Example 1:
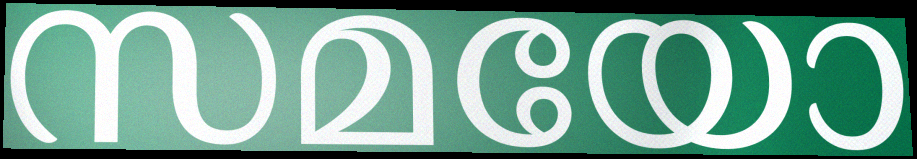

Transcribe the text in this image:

സമയോ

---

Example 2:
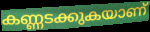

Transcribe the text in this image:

കണ്ണടക്കുകയാണ്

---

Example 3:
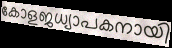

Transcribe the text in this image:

കോളജധ്യാപകനായി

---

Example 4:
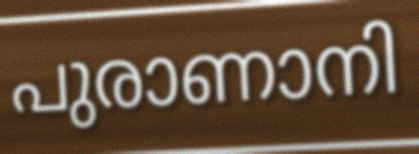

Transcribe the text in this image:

പുരാണാനി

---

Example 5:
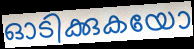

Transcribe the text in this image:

ഓടിക്കുകയോ